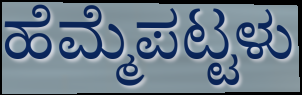
ಹೆಮ್ಮೆಪಟ್ಟಳು